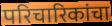
परिचारिकांचा